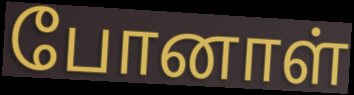
போனாள்